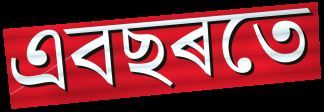
এবছৰতে